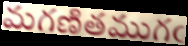
మగణితముగఁ